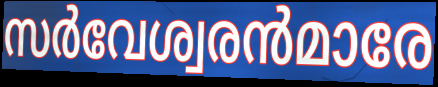
സർവേശ്വരൻമാരേ